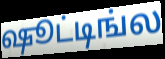
ஷூட்டிங்ல